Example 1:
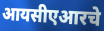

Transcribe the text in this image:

आयसीएआरचे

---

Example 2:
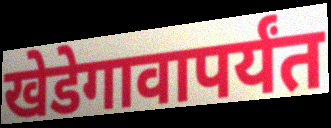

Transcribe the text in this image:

खेडेगावापर्यंत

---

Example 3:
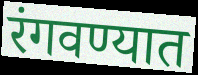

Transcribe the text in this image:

रंगवण्यात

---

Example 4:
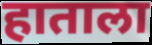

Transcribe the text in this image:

हाताला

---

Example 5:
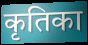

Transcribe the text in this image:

कृतिका